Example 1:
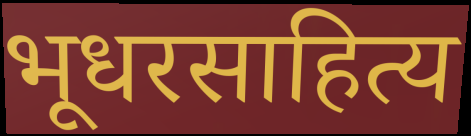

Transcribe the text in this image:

भूधरसाहित्य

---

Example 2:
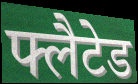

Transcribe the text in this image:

फ्लैटेड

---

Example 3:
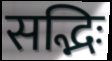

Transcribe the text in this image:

सद्भिः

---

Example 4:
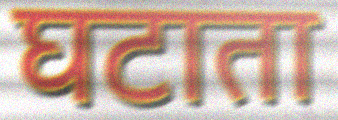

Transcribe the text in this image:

घटाता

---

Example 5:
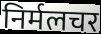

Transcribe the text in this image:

निर्मलचर